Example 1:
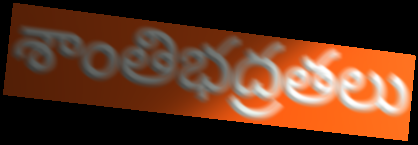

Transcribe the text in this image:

శాంతిభద్రతలు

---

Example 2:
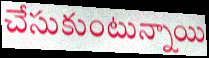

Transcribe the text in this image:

చేసుకుంటున్నాయి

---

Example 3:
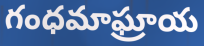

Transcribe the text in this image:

గంధమాఘ్రాయ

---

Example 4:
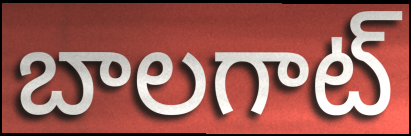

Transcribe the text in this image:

బాలగాట్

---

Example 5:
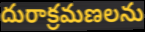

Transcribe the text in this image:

దురాక్రమణలను